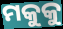
ମକୁକୁ